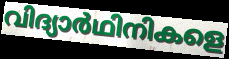
വിദ്യാർഥിനികളെ